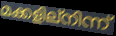
മക്കളില്നിന്ന്